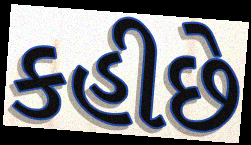
કહીછે